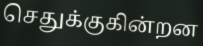
செதுக்குகின்றன